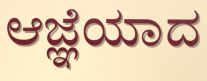
ಆಜ್ಞೆಯಾದ